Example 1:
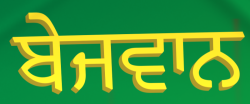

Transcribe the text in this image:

ਬੇਜਵਾਨ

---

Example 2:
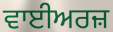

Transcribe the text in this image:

ਵਾਈਅਰਜ਼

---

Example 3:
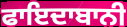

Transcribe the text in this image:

ਫਾਇਦਾਬਾਨੀ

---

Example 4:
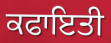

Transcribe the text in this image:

ਕਫਾਇਤੀ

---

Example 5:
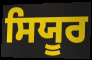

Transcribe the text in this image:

ਸਿਯੂਰ